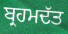
ਬ੍ਰਹਮਦੱਤ